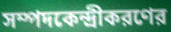
সম্পদকেন্দ্রীকরণের